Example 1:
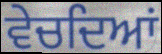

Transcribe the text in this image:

ਵੇਚਦਿਆਂ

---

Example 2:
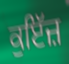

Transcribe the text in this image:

ਕੁਇੱਜ਼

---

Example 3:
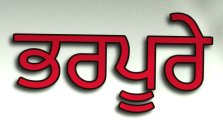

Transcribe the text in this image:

ਭਰਪੂਰੇ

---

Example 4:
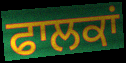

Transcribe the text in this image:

ਫਾਲਕਾਂ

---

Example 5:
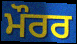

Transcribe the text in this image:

ਮੌਰਰ